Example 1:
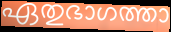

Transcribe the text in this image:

ഏതുഭാഗത്താ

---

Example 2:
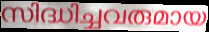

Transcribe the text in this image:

സിദ്ധിച്ചവരുമായ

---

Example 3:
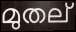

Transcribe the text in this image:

മുതല്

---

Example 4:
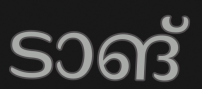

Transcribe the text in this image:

ടാങ്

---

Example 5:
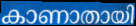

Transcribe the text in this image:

കാണാതായി